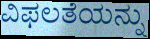
ವಿಫಲತೆಯನ್ನು